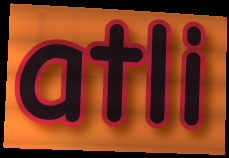
atli